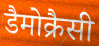
डैमोक्रैसी